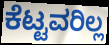
ಕೆಟ್ಟವರಿಲ್ಲ